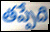
తప్పేది